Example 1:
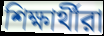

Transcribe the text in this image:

শিক্ষার্থীরা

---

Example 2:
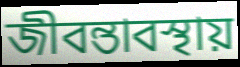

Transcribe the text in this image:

জীবন্তাবস্থায়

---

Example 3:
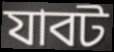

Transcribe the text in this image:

যাবট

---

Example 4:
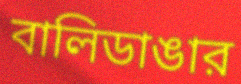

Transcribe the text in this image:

বালিডাঙার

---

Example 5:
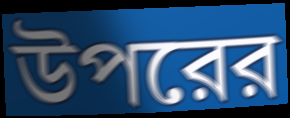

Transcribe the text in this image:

উপরের